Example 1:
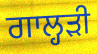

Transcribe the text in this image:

ਗਾਲ੍ਹੜੀ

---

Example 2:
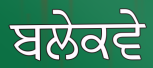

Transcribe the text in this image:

ਬਲੇਕਵੇ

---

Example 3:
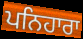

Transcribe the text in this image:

ਪਨਿਹਾਰਾ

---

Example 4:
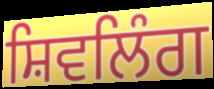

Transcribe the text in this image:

ਸ਼ਿਵਲਿੰਗ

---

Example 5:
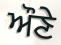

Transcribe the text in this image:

ਔਣੇ